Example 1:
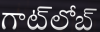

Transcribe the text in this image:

గాట్‍లోబ్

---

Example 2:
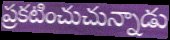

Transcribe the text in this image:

ప్రకటించుచున్నాడు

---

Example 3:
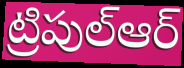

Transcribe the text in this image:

ట్రిపుల్ఆర్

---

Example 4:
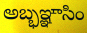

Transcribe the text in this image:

అబ్భఞ్ఞాసిం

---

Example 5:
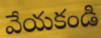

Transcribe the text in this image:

వేయకండి